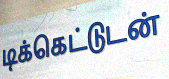
டிக்கெட்டுடன்